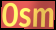
Osm